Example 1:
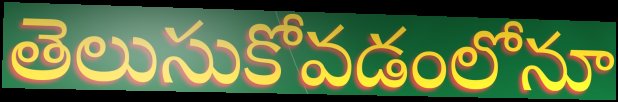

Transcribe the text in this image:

తెలుసుకోవడంలోనూ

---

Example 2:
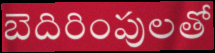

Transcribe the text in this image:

బెదిరింపులతో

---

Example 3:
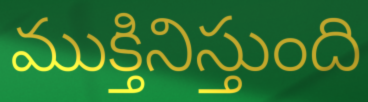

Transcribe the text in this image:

ముక్తినిస్తుంది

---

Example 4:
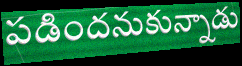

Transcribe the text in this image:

పడిందనుకున్నాడు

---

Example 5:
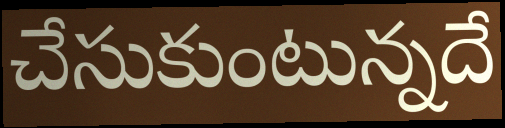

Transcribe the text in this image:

చేసుకుంటున్నదే